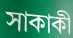
সাকাকী